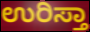
ಉರಿಸ್ತಾ